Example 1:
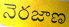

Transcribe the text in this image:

నెరజాణ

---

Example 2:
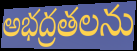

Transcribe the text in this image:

అభద్రతలను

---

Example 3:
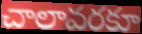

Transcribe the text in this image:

చాలావరకూ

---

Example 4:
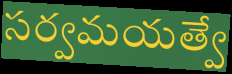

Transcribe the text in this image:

సర్వమయత్వే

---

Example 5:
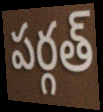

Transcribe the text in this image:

పర్గత్